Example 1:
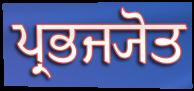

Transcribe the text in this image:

ਪ੍ਰਭਜ੍ਯੋਤ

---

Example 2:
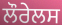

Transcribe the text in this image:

ਲੌਰੇਲਸ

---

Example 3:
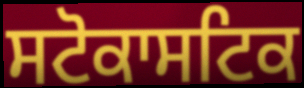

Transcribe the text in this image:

ਸਟੋਕਾਸਟਿਕ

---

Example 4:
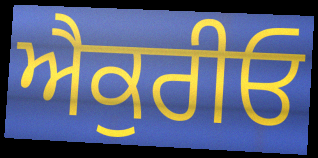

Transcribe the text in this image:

ਐਕੁਰੀਓ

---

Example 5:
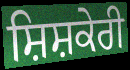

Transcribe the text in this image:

ਸ਼ਿਸ਼ਕੇਰੀ